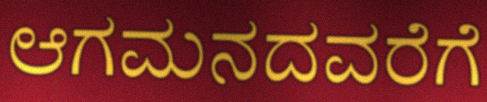
ಆಗಮನದವರೆಗೆ